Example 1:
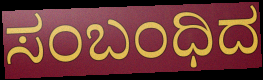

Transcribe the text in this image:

ಸಂಬಂಧಿದ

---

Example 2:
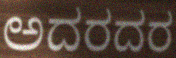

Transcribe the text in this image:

ಅದರದರ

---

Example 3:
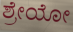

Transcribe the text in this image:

ಶ್ರೇಯೋ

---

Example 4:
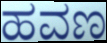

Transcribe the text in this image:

ಹವಣ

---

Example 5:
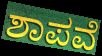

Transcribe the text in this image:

ಶಾಪವೆ